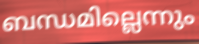
ബന്ധമില്ലെന്നും